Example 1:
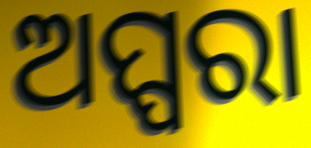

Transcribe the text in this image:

ଅପ୍ପରା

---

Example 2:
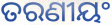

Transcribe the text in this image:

ତରଣୀୟଂ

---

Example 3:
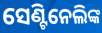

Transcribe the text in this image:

ସେଣ୍ଟିନେଲିଙ୍କ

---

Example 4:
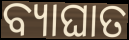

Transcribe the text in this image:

ବ୍ୟାଘାତ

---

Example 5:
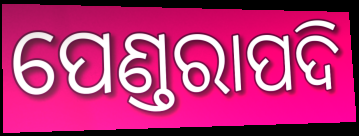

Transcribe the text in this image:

ପେଣ୍ଡରାପଦି